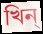
খিন্